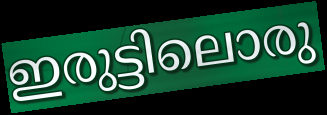
ഇരുട്ടിലൊരു